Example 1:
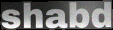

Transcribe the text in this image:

shabd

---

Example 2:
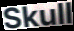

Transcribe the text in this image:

Skull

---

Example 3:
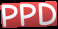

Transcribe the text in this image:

PPD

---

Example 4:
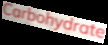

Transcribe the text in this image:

Carbohydrate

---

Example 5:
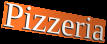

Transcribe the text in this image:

Pizzeria